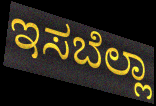
ಇಸಬೆಲ್ಲಾ